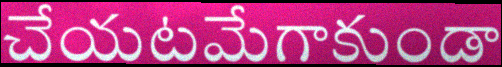
చేయటమేగాకుండా